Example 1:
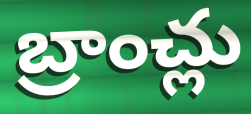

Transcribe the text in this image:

బ్రాంచ్లు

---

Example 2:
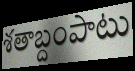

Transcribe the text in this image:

శతాబ్దంపాటు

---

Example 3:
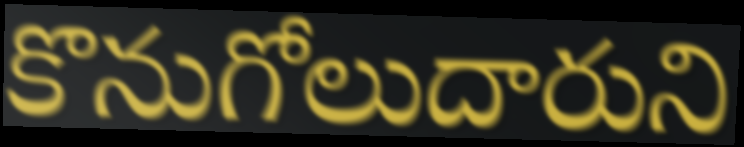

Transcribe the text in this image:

కొనుగోలుదారుని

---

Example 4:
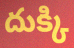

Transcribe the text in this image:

దుక్కి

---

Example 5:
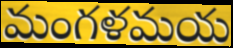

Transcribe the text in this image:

మంగళమయ